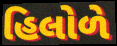
હિલોળે